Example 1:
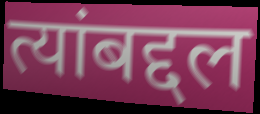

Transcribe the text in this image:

त्यांबद्दल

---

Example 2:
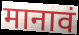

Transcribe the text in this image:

मानावं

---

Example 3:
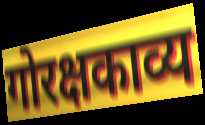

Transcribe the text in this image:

गोरक्षकाव्य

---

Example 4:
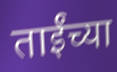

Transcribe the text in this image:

ताईंच्या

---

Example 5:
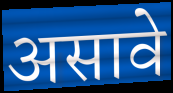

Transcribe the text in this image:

असावे